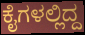
ಕೈಗಳಲ್ಲಿದ್ದ